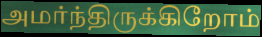
அமர்ந்திருக்கிறோம்